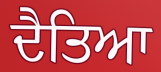
ਦੈਤਿਆ